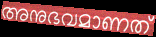
അനുഭവമാണത്